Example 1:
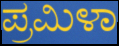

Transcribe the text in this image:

ಪ್ರಮಿಳಾ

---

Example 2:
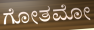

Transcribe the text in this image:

ಗೋತಮೋ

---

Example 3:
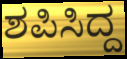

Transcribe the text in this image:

ಶಪಿಸಿದ್ದ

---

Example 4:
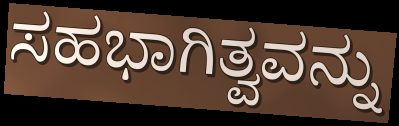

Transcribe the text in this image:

ಸಹಭಾಗಿತ್ವವನ್ನು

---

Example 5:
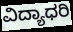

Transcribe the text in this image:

ವಿದ್ಯಾಧರಿ